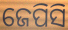
ଜେପିସି